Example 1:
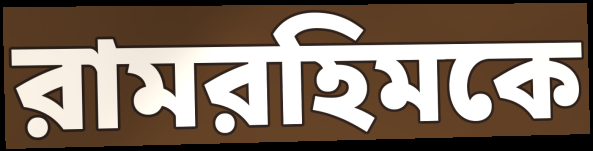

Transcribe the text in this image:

রামরহিমকে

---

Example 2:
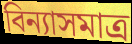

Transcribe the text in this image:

বিন্যাসমাত্র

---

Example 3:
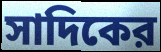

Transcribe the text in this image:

সাদিকের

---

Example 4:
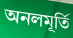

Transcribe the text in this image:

অনলমূর্তি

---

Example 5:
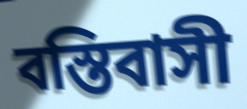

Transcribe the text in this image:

বস্তিবাসী